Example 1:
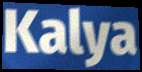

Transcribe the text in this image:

Kalya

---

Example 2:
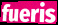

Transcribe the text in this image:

fueris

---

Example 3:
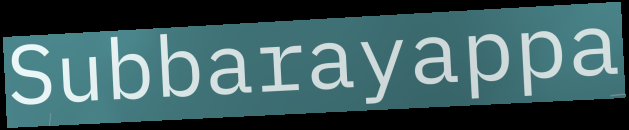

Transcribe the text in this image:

Subbarayappa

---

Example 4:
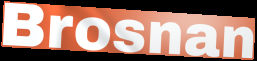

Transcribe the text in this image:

Brosnan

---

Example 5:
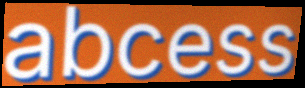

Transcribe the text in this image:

abcess